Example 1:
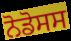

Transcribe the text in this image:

ਨੋਡੋਸਸ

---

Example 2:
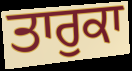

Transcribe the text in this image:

ਤਾਰੁਕਾ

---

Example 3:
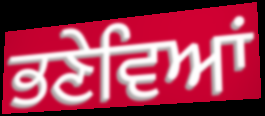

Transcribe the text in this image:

ਭਣੇਵਿਆਂ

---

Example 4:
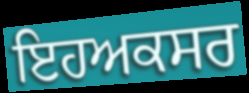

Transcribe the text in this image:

ਇਹਅਕਸਰ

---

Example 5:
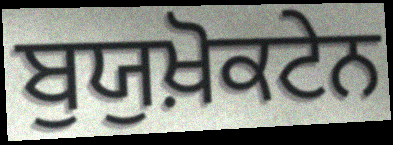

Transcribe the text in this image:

ਬੁਯੁਖ਼ੋਕਟੇਨ